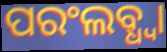
ପରଂଲବ୍ଧ୍ଵା